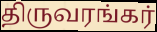
திருவரங்கர்